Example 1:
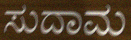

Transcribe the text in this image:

ಸುದಾಮ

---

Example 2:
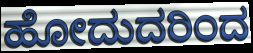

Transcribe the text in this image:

ಹೋದುದರಿಂದ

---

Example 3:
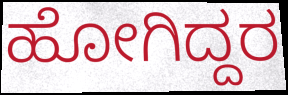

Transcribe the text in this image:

ಹೋಗಿದ್ದರ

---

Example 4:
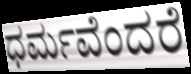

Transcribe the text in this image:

ಧರ್ಮವೆಂದರೆ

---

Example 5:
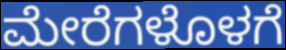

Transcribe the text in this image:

ಮೇರೆಗಳೊಳಗೆ